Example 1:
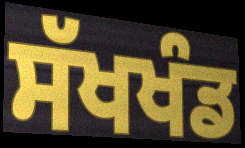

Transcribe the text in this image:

ਸੱਖਖੰਡ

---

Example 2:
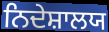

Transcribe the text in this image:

ਨਿਦੇਸ਼ਾਲਯ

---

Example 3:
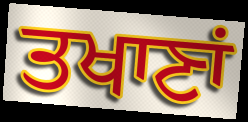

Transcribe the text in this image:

ਤਖਾਣਾਂ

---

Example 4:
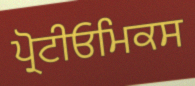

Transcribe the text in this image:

ਪ੍ਰੋਟੀਓਮਿਕਸ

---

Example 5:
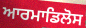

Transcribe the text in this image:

ਆਰਮਾਡਿਲੋਸ